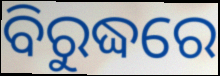
ବିରୁଦ୍ଧରେ